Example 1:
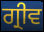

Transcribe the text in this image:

ਗ੍ਰੀਵ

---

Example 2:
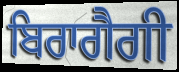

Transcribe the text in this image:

ਬਿਰਾਗੈਗੀ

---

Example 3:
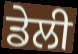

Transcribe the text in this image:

ਡੇਲੀ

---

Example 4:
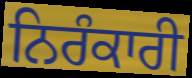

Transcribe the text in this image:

ਨਿਰੰਕਾਰੀ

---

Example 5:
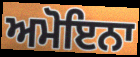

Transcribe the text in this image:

ਅਮੋਇਨਾ